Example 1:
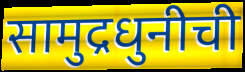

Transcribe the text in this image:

सामुद्रधुनीची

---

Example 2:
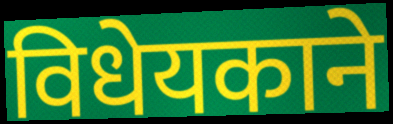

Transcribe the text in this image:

विधेयकाने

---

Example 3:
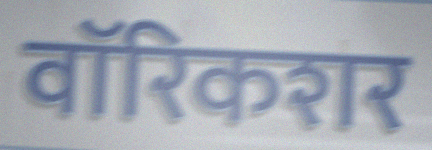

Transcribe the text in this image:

वॉरिकशर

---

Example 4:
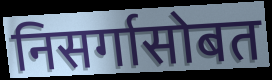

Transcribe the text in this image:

निसर्गासोबत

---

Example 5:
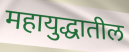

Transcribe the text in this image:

महायुद्धातील